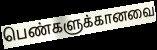
பெண்களுக்கானவை